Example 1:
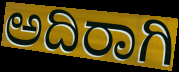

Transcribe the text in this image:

ಅದಿರಾಗಿ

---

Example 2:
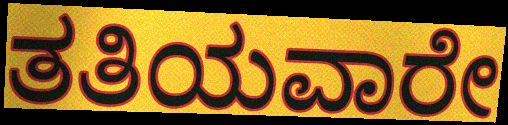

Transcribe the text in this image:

ತತಿಯವಾರೇ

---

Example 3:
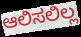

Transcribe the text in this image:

ಆಲಿಸಲಿಲ್ಲ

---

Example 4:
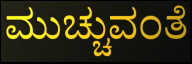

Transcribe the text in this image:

ಮುಚ್ಚುವಂತೆ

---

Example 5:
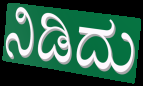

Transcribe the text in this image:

ನಿಡಿದು